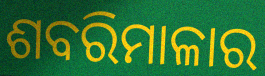
ଶବରିମାଳାର